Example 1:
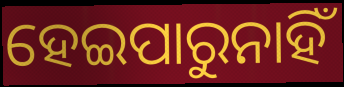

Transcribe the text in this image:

ହେଇପାରୁନାହିଁ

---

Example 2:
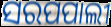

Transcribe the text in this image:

ସରପପାଲୀ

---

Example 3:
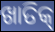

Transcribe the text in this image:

ଖାତିକ୍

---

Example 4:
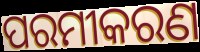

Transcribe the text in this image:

ପରମୀକରଣ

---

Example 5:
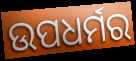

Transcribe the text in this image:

ଉପଧର୍ମର